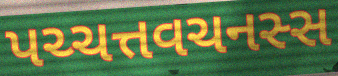
પચ્ચત્તવચનસ્સ